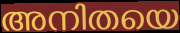
അനിതയെ